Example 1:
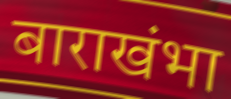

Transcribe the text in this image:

बाराखंभा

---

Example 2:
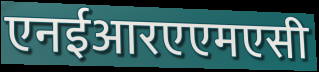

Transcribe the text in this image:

एनईआरएएमएसी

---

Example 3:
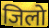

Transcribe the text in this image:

जिलो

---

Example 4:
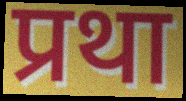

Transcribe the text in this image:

प्रथा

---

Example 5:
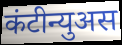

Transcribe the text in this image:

कंटीन्युअस